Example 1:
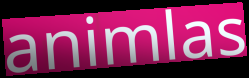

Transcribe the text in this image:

animlas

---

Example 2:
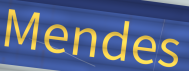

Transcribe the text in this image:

Mendes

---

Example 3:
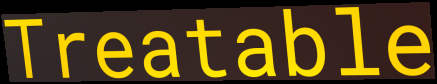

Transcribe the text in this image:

Treatable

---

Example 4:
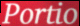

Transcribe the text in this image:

Portio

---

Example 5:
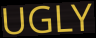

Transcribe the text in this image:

UGLY